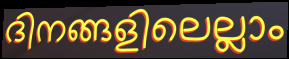
ദിനങ്ങളിലെല്ലാം